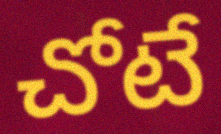
చోటే